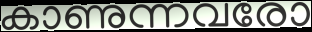
കാണുന്നവരോ